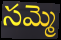
సమ్మె